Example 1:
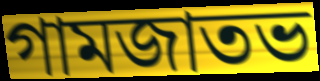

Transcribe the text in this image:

গামজাতভ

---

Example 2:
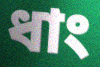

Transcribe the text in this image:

ধাং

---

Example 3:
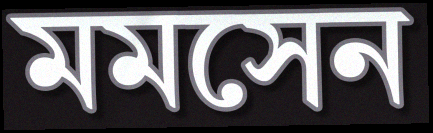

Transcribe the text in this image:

মমসেন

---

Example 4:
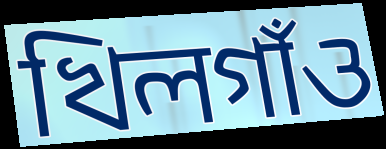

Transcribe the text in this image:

খিলগাঁও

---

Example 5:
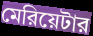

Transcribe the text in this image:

মেরিয়েটার